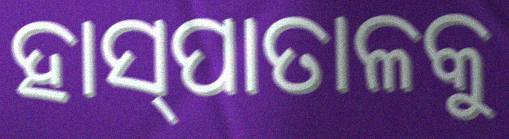
ହାସ୍‍ପାତାଳକୁ